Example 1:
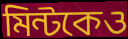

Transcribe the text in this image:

মিন্টকেও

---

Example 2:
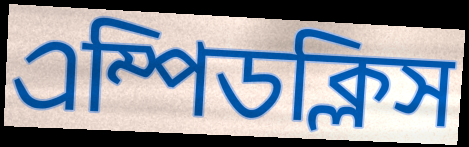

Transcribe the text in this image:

এম্পিডক্লিস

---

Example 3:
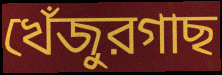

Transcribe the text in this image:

খেঁজুরগাছ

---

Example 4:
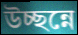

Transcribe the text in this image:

উচ্ছন্নে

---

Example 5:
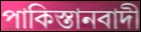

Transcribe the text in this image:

পাকিস্তানবাদী